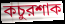
কচুরশাক